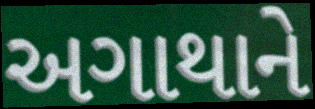
અગાથાને